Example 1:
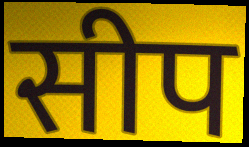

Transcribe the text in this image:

सीप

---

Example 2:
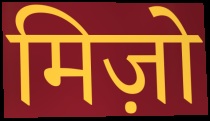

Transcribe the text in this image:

मिज़ो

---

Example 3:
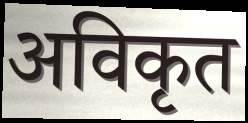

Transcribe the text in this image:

अविकृत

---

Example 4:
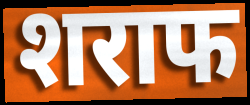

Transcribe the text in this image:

शराफ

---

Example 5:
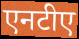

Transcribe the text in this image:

एनटीए